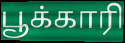
பூக்காரி